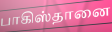
பாகிஸ்தானை